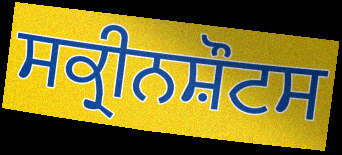
ਸਕ੍ਰੀਨਸ਼ੌਟਸ